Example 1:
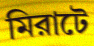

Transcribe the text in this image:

মিরাটে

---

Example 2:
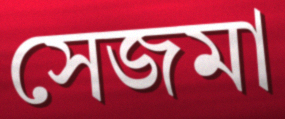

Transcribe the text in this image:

সেজমা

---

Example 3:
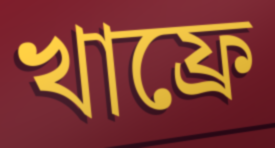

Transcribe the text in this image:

খাফ্রে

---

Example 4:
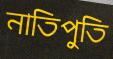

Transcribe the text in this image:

নাতিপুতি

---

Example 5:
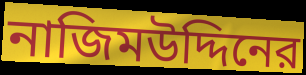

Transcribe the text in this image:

নাজিমউদ্দিনের